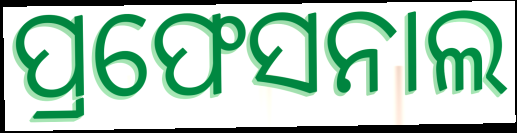
ପ୍ରଫେସନାଲ